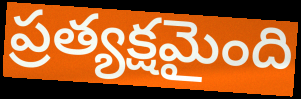
ప్రత్యక్షమైంది